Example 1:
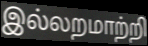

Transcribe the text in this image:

இல்லறமாற்றி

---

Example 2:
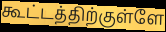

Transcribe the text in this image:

கூட்டத்திற்குள்ளே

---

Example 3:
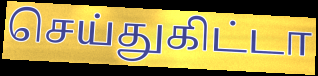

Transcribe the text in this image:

செய்துகிட்டா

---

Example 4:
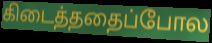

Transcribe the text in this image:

கிடைத்ததைப்போல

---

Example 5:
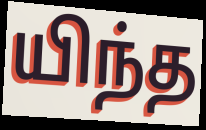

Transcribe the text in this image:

யிந்த